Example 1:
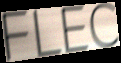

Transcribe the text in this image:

FLEC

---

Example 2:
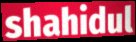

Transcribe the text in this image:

shahidul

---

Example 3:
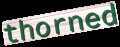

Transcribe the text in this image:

thorned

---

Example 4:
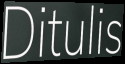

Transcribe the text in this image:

Ditulis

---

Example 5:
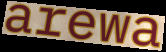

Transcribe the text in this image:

arewa